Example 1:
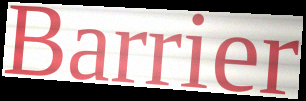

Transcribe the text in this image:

Barrier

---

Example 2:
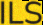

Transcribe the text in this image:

ILS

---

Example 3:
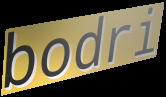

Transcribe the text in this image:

bodri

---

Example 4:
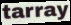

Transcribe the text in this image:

tarray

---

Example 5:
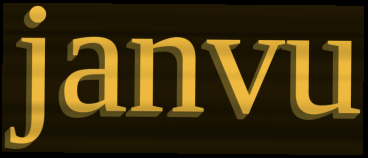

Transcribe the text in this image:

janvu